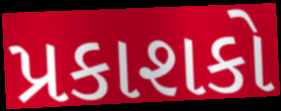
પ્રકાશકો